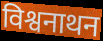
विश्वनाथन